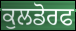
ਕੁਲਡੋਰਫ